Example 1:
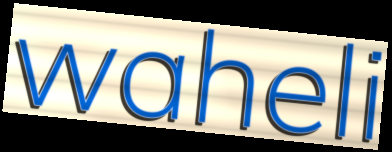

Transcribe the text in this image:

waheli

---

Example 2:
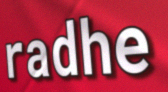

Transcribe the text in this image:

radhe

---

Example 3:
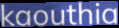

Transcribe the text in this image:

kaouthia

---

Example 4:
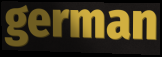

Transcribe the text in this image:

german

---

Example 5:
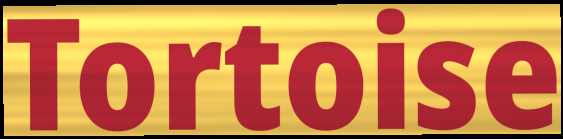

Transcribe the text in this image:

Tortoise